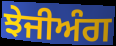
ਝੇਜੀਅੰਗ